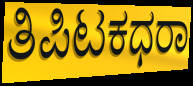
ತಿಪಿಟಕಧರಾ